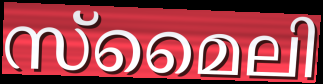
സ്മൈലി